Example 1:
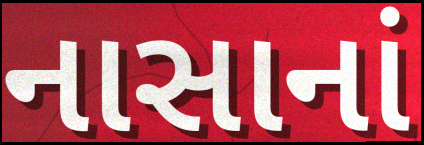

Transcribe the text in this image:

નાસાનાં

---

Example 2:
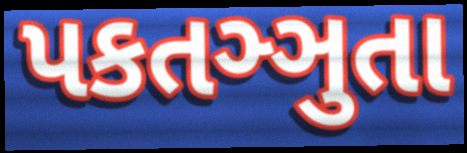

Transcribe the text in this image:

પકતઞ્ઞુતા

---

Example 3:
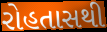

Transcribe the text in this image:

રોહતાસથી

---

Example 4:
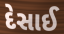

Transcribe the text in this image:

દેસાઈ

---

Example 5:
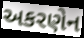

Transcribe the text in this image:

અકરણેન